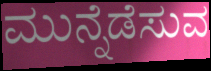
ಮುನ್ನೆಡೆಸುವ